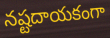
నష్టదాయకంగా